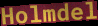
Holmdel